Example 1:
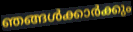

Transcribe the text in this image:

ഞങ്ങൾക്കാർക്കും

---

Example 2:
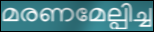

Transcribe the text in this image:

മരണമേല്പിച്ച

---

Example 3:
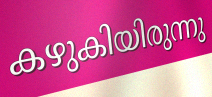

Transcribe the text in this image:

കഴുകിയിരുന്നു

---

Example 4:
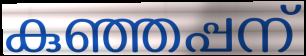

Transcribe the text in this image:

കുഞ്ഞപ്പന്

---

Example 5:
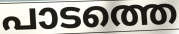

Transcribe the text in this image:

പാടത്തെ